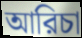
আরিচা